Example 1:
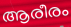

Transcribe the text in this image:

ആരീരം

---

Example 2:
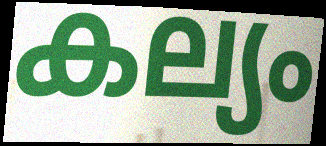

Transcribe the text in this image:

കല്യം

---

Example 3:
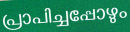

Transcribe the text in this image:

പ്രാപിച്ചപ്പോഴും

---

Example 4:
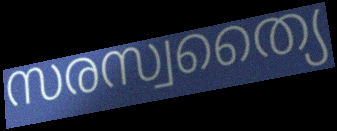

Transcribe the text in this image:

സരസ്വത്യൈ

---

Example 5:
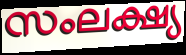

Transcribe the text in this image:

സംലക്ഷ്യ